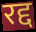
रद्द